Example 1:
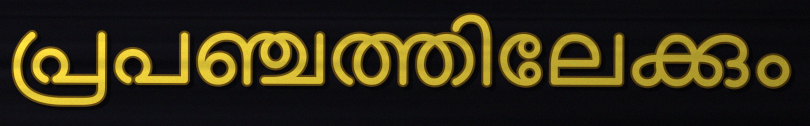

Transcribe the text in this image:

പ്രപഞ്ചത്തിലേക്കും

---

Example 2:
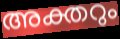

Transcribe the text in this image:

അക്തറും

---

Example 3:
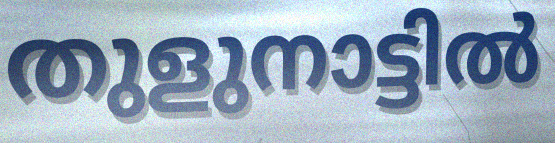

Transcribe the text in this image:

തുളുനാട്ടിൽ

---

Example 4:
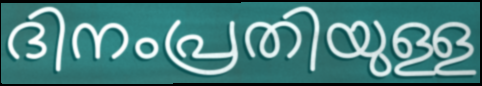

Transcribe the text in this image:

ദിനംപ്രതിയുള്ള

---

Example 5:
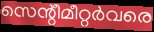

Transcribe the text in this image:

സെന്റീമീറ്റർവരെ